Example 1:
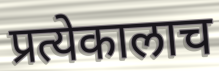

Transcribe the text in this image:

प्रत्येकालाच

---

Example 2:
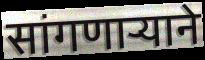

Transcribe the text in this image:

सांगणार्‍याने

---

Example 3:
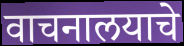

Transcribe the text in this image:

वाचनालयाचे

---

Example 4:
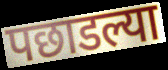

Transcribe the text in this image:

पछाडल्या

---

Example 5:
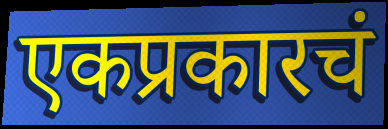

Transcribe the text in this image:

एकप्रकारचं